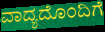
ವಾದ್ಯದೊಂದಿಗೆ